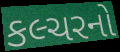
કલ્ચરનો